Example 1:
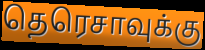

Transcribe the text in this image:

தெரெசாவுக்கு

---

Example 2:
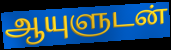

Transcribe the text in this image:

ஆயுளுடன்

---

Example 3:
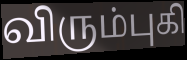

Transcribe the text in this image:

விரும்புகி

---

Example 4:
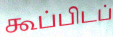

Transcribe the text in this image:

கூப்பிடப்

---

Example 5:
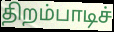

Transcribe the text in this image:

திறம்பாடிச்